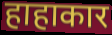
हाहाकार